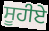
ਸੂਹੀਏ